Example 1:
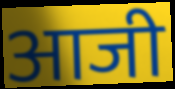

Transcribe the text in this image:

आजी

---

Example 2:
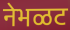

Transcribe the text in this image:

नेभळट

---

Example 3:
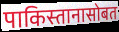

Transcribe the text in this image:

पाकिस्तानासोबत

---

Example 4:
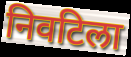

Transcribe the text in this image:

निवटिला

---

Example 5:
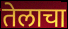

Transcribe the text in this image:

तेलाचा